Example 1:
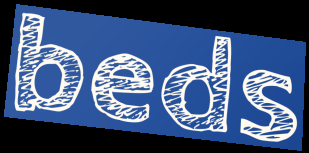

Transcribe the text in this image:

beds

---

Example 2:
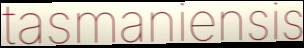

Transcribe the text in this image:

tasmaniensis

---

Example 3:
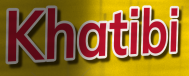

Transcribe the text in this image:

Khatibi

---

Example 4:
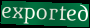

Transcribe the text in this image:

exported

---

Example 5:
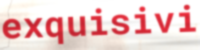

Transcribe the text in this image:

exquisivi